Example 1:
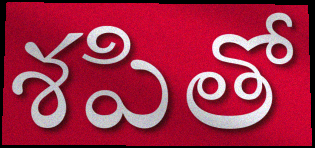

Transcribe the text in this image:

శపితో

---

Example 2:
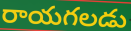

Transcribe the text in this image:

రాయగలడు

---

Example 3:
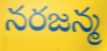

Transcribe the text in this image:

నరజన్మ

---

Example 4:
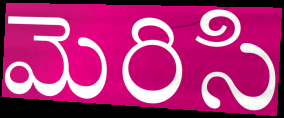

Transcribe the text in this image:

మెరిసి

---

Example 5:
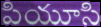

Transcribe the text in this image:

పియూసి